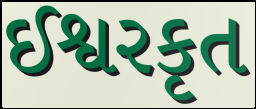
ઈશ્વરકૃત